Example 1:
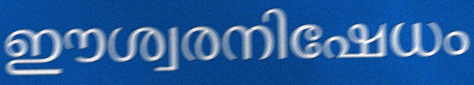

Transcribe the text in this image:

ഈശ്വരനിഷേധം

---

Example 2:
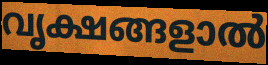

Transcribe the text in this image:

വൃക്ഷങ്ങളാൽ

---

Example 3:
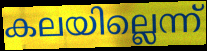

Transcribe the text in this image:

കലയില്ലെന്ന്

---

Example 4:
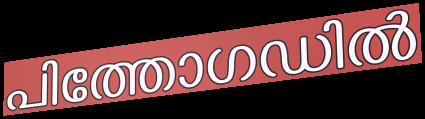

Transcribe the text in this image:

പിത്തോഗഡിൽ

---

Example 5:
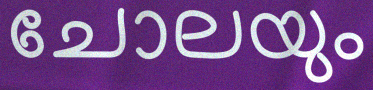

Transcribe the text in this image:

ചോലയും